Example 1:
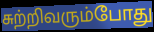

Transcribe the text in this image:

சுற்றிவரும்போது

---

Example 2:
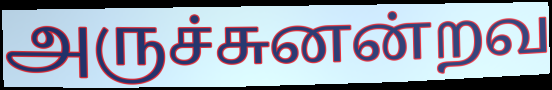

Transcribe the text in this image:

அருச்சுனன்றவ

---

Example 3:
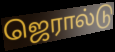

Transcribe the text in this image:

ஜெரால்டு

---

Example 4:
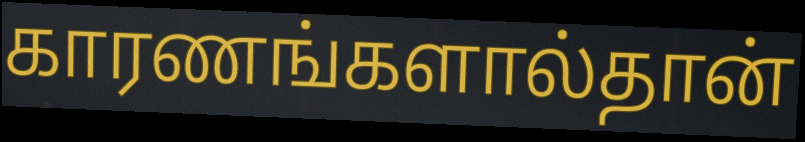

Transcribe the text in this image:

காரணங்களால்தான்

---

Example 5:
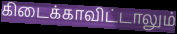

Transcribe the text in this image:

கிடைக்காவிட்டாலும்